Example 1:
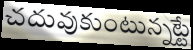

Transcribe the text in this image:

చదువుకుంటున్నట్టే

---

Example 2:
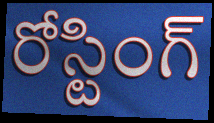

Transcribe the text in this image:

రోస్టింగ్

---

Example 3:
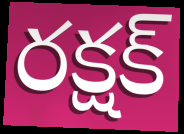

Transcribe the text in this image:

రక్షక్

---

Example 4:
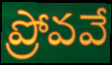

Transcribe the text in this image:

ప్రోవవే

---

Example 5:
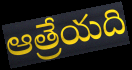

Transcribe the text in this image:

ఆత్రేయది